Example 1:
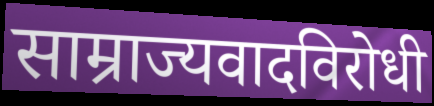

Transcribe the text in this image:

साम्राज्यवादविरोधी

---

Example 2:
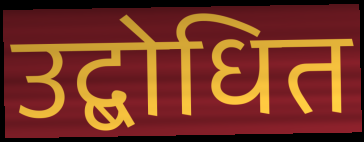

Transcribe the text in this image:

उद्बोधित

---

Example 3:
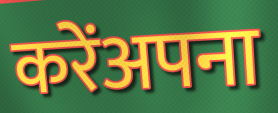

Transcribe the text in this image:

करेंअपना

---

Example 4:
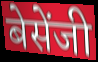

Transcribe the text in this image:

बेसेंजी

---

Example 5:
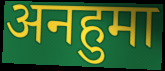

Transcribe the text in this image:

अनहुमा